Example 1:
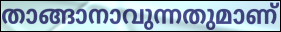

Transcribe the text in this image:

താങ്ങാനാവുന്നതുമാണ്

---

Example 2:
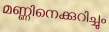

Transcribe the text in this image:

മണ്ണിനെക്കുറിച്ചും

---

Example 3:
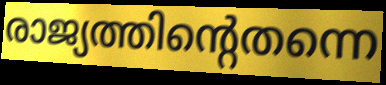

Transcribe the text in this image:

രാജ്യത്തിന്റെതന്നെ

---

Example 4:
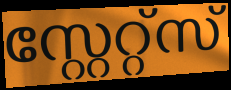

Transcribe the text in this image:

സ്റ്റേറ്റ്സ്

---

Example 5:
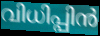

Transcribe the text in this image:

വിധിപ്പിൻ